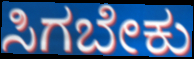
ಸಿಗಬೇಕು